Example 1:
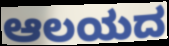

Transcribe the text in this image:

ಆಲಯದ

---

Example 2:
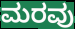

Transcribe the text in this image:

ಮರವು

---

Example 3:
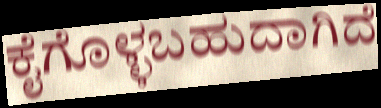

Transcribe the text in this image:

ಕೈಗೊಳ್ಳಬಹುದಾಗಿದೆ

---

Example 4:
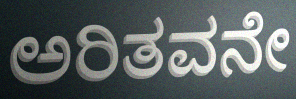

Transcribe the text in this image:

ಅರಿತವನೇ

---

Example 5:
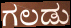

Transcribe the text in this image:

ಗಲಡು